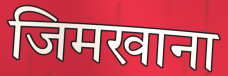
जिमखाना